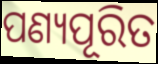
ପଣ୍ୟପୂରିତ